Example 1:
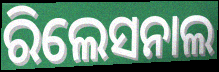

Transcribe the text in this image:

ରିଲେସନାଲ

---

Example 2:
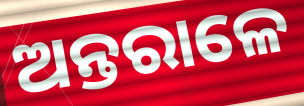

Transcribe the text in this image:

ଅନ୍ତରାଳେ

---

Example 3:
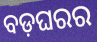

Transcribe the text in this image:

ବଡ଼ଘରର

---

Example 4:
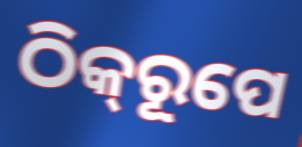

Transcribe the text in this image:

ଠିକ୍‍ରୂପେ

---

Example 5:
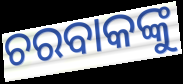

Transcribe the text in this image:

ଚରବାକଙ୍କୁ